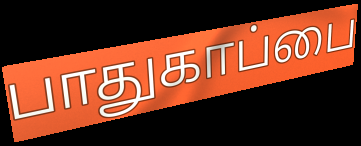
பாதுகாப்பை